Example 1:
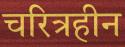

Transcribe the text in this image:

चरित्रहीन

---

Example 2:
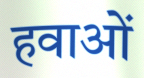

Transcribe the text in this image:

हवाओं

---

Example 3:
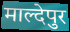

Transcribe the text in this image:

माल्देपुर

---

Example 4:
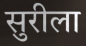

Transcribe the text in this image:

सुरीला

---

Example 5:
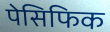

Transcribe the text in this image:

पेसिफिक